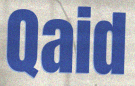
Qaid